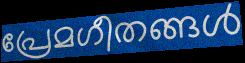
പ്രേമഗീതങ്ങൾ